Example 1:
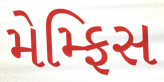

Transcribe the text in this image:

મેમ્ફિસ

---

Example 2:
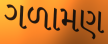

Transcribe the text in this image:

ગળામણ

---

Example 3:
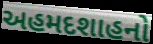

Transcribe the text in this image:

અહમદશાહનો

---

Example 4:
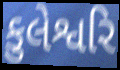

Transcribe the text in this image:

કુલેશ્વરિ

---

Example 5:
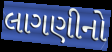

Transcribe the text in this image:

લાગણીનો